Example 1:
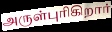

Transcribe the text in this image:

அருள்புரிகிறார்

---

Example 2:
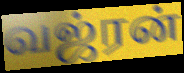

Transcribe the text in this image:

வஜ்ரன்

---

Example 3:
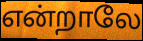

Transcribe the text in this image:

என்றாலே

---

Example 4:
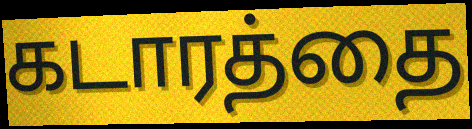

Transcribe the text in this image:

கடாரத்தை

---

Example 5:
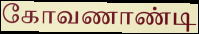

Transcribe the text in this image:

கோவணாண்டி